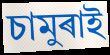
চামুৰাই